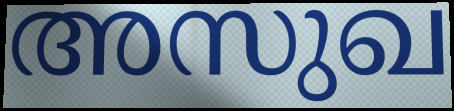
അസുഖ